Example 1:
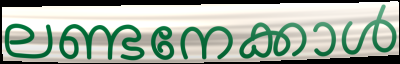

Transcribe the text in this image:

ലണ്ടനേക്കാൾ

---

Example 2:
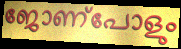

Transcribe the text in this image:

ജോണ്പോളും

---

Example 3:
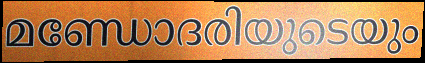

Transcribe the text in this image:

മണ്ഡോദരിയുടെയും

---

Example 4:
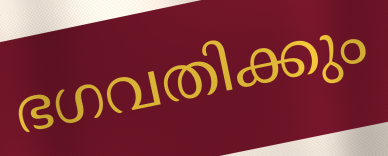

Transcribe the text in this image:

ഭഗവതിക്കും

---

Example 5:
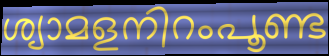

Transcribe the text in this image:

ശ്യാമളനിറംപൂണ്ട